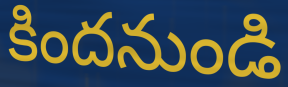
కిందనుండి